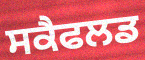
ਸਕੈਫਲਡ